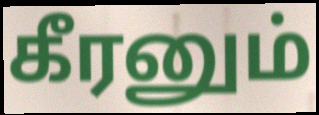
கீரனும்